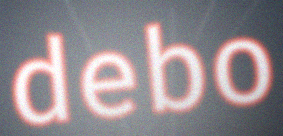
debo